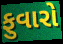
ફુવારો